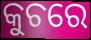
କୁଚରେ